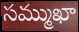
సమ్ముఖా